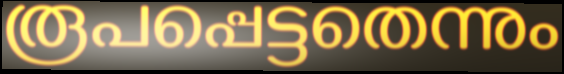
രൂപപ്പെട്ടതെന്നും